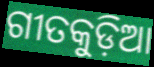
ଗୀତକୁଡ଼ିଆ